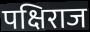
पक्षिराज